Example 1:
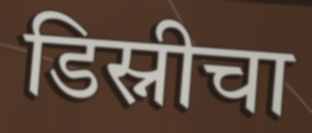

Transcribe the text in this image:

डिस्नीचा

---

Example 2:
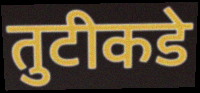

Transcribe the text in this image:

तुटीकडे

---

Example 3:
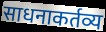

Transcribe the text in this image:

साधनाकर्तव्य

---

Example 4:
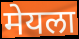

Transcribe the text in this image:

मेयला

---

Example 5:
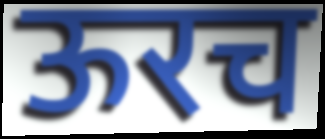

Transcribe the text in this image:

ऊरच